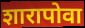
शारापोवा